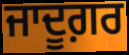
ਜਾਦੂਗ਼ਰ